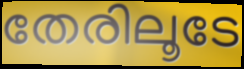
തേരിലൂടേ